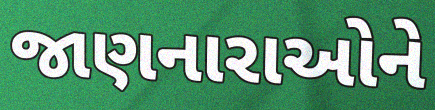
જાણનારાઓને